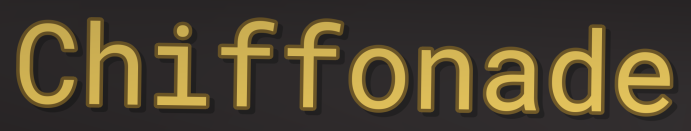
Chiffonade